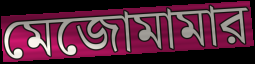
মেজোমামার